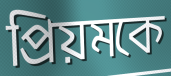
প্রিয়মকে